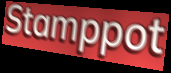
Stamppot